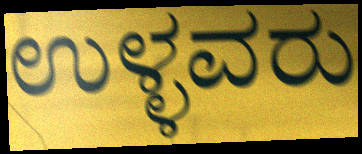
ಉಳ್ಳವರು